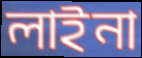
লাইনা